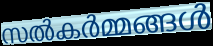
സൽകർമ്മങ്ങൾ